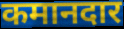
कमानदार